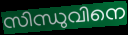
സിന്ധുവിനെ